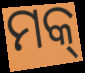
ମକ୍